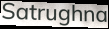
Satrughna